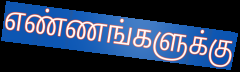
எண்ணங்களுக்கு